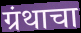
ग्रंथाचा